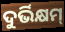
ଦୁର୍ଭିକ୍ଷମ୍